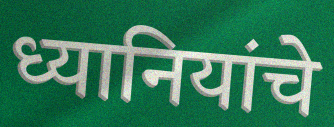
ध्यानियांचे